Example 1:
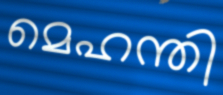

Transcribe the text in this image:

മെഹന്തി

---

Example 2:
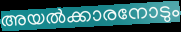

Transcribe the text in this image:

അയൽക്കാരനോടും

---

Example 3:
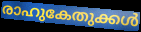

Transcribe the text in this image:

രാഹുകേതുക്കൾ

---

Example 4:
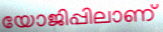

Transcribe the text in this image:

യോജിപ്പിലാണ്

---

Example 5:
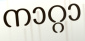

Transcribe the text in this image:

നാറ്റാ